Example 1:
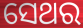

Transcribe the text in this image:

ସେଥର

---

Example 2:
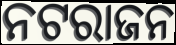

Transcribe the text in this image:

ନଟରାଜନ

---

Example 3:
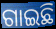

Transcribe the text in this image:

ଗାଇଛି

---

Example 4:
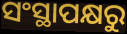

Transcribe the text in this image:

ସଂସ୍ଥାପକ୍ଷରୁ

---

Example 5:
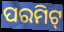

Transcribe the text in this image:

ପରମିଟ୍